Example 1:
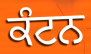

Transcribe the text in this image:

ਕੰਟਨ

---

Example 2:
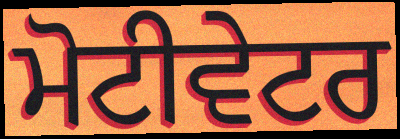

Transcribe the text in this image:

ਮੋਟੀਵੇਟਰ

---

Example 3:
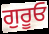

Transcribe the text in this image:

ਗੁਰੂਓ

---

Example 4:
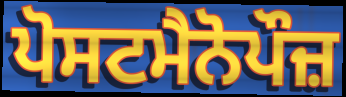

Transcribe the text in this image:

ਪੋਸਟਮੈਨੋਪੌਜ਼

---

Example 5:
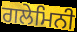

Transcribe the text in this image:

ਗਲੇਮਿਨੀ